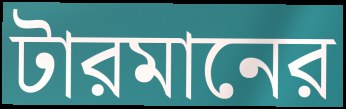
টারমানের